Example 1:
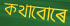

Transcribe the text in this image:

কথাবোৰে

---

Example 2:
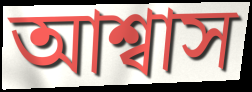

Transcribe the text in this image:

আশ্বাস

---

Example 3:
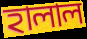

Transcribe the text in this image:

হালাল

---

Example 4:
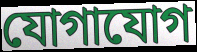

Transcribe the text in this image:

যোগাযোগ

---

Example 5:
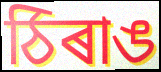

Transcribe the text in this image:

ঠিৰাঙ